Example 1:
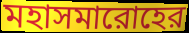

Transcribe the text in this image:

মহাসমারোহের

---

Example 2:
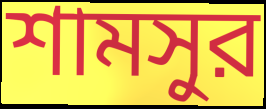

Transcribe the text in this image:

শামসুর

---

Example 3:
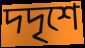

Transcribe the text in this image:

দদৃশে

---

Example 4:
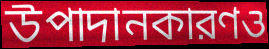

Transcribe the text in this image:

উপাদানকারণও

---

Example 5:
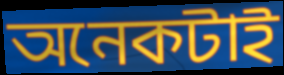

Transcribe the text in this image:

অনেকটাই